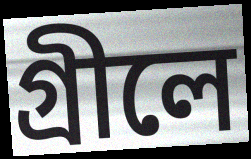
গ্রীলে